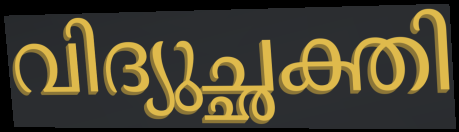
വിദ്യുച്ഛക്തി